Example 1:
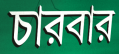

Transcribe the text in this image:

চারবার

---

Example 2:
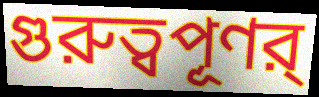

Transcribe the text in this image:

গুরুত্বপূণর্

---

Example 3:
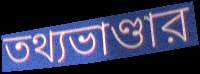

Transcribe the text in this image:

তথ্যভাণ্ডার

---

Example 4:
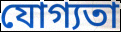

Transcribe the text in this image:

যোগ্যতা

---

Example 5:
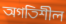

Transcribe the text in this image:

অগতিশীল